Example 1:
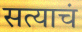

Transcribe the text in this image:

सत्याचं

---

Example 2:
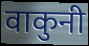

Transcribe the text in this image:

वाकुनी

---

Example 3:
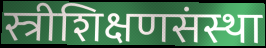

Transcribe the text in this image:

स्त्रीशिक्षणसंस्था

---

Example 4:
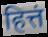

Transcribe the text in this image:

हित्तं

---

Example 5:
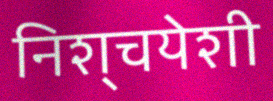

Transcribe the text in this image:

निश्चयेशी